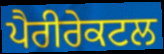
ਪੈਰੀਰੇਕਟਲ